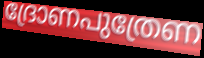
ദ്രോണപുത്രേണ